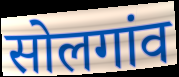
सोलगांव